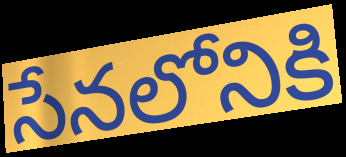
సేనలోనికి